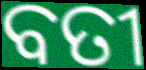
ବତୀ